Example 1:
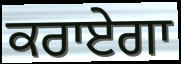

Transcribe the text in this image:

ਕਰਾਏਗਾ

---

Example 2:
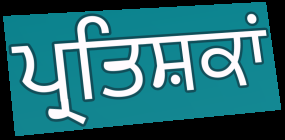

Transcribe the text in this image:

ਪ੍ਰਤਿਸ਼ਕਾਂ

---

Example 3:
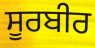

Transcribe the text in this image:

ਸੂਰਬੀਰ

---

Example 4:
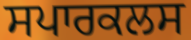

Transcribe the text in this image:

ਸਪਾਰਕਲਸ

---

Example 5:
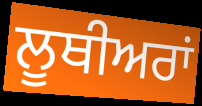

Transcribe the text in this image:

ਲੂਥੀਅਰਾਂ